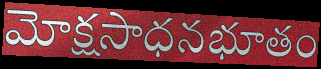
మోక్షసాధనభూతం